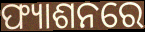
ଫ୍ୟାଶନରେ